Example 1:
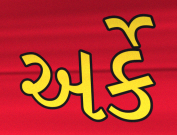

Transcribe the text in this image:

અર્કે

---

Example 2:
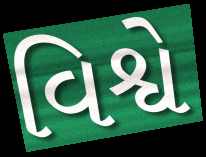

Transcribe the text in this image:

વિશ્વે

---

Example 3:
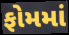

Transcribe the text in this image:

ફોમમાં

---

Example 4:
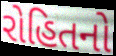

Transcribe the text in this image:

રોહિતનો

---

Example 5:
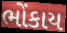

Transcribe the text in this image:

ભોંકાય